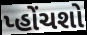
પ્હોંચશો